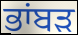
ਭਾਂਬੜ